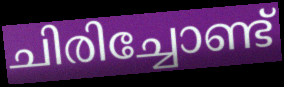
ചിരിച്ചോണ്ട്